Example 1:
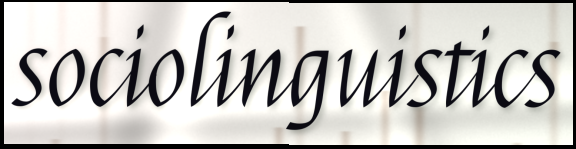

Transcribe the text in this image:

sociolinguistics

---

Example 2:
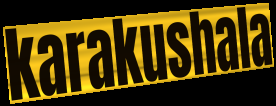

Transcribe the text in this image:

karakushala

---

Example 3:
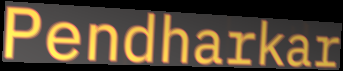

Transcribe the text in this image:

Pendharkar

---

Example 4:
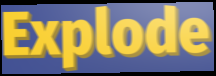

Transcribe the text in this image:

Explode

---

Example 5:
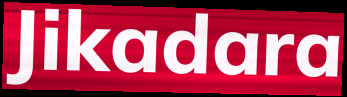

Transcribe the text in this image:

Jikadara